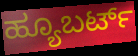
ಹ್ಯೂಬರ್ಟ್